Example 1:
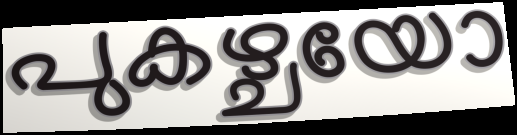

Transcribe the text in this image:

പുകഴ്ചയോ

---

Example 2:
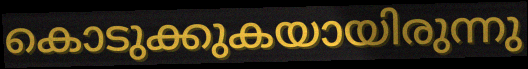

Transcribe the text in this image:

കൊടുക്കുകയായിരുന്നു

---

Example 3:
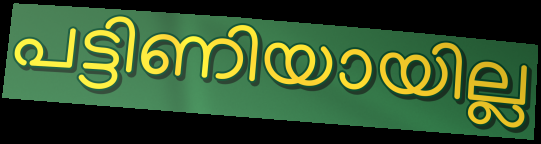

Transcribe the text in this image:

പട്ടിണിയായില്ല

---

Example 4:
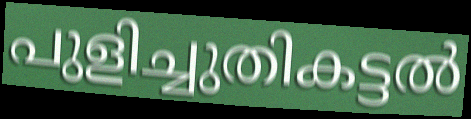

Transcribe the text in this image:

പുളിച്ചുതികട്ടൽ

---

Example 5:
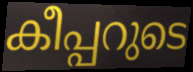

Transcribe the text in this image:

കീപ്പറുടെ